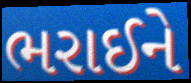
ભરાઈને